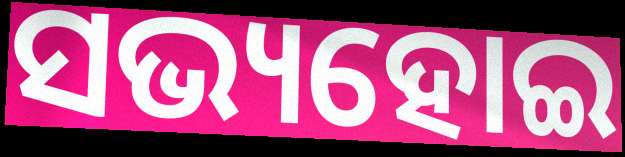
ସଭ୍ୟହୋଇ